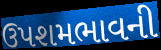
ઉપશમભાવની